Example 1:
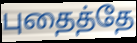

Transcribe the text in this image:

புதைத்தே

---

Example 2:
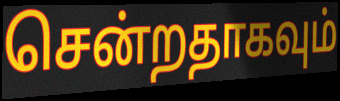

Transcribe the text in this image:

சென்றதாகவும்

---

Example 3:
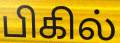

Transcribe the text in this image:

பிகில்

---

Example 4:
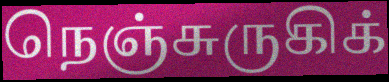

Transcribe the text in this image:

நெஞ்சுருகிக்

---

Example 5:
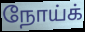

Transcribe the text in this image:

நோய்க்